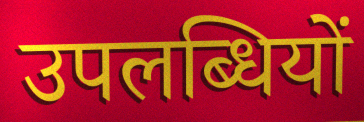
उपलब्धियों